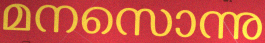
മനസൊന്നു